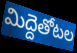
మిద్దెతోటల